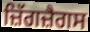
ਜ਼ਿੱਗਜ਼ੈਗਸ